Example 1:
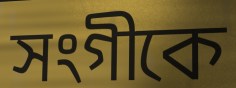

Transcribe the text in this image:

সংগীকে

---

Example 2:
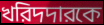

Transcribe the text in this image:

খরিদদারকে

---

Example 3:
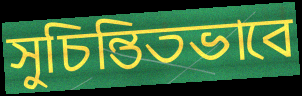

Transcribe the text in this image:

সুচিন্তিতভাবে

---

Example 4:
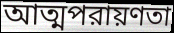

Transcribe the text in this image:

আত্মপরায়ণতা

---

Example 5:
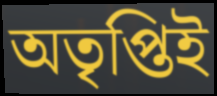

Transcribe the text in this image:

অতৃপ্তিই